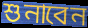
শুনাবেন